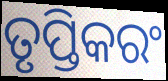
ତୃପ୍ତିକରଂ